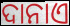
ଦାନାଏ